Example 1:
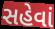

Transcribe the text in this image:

સહેવાં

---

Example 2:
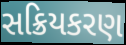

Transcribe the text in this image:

સક્રિયકરણ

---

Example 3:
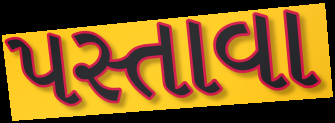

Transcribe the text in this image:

પસ્તાવા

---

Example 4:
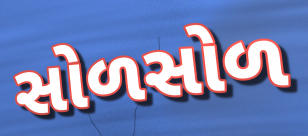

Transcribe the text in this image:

સોળસોળ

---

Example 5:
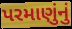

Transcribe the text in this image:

પરમાણુંનું